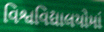
વિશ્વવિદ્યાલયોમાં